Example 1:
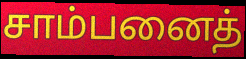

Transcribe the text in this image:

சாம்பனைத்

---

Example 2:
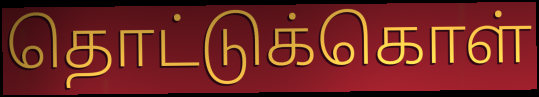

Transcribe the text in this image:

தொட்டுக்கொள்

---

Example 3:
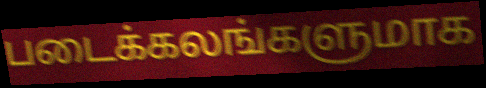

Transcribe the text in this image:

படைக்கலங்களுமாக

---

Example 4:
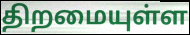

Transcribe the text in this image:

திறமையுள்ள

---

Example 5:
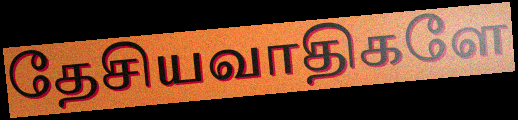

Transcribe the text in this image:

தேசியவாதிகளே